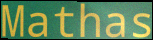
Mathas